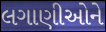
લગાણીઓને